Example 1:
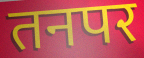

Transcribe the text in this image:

तनपर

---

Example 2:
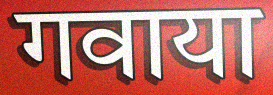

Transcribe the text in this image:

गवाया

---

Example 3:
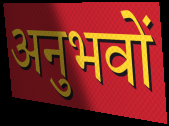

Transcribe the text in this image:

अनुभवों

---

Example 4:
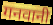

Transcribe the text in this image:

गनवानी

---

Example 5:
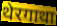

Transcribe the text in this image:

थेरगाथा